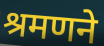
श्रमणने